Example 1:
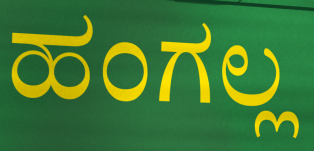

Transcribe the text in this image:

ಹಂಗಲ್ಲ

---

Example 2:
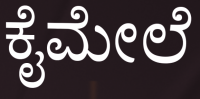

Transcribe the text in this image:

ಕೈಮೇಲೆ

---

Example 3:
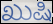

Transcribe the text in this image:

ಖುಷಿ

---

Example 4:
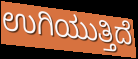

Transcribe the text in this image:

ಉಗಿಯುತ್ತಿದೆ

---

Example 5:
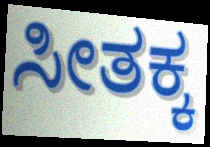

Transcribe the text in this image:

ಸೀತಕ್ಕ